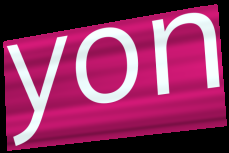
yon